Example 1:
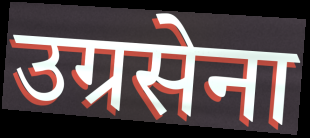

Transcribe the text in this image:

उग्रसेना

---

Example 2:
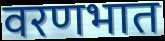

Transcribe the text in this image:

वरणभात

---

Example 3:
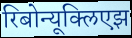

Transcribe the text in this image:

रिबोन्यूक्लिएझ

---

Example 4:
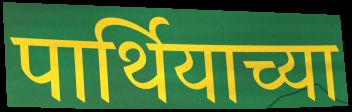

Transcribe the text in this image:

पार्थियाच्या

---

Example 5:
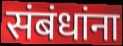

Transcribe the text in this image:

संबंधांना